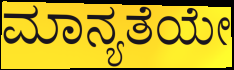
ಮಾನ್ಯತೆಯೇ